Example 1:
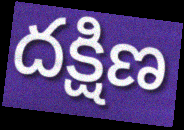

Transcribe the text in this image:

దక్షిణ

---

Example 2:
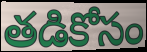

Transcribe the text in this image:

తడికోసం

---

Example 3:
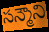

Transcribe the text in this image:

సన్మౌని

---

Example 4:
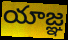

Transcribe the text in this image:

యాజ్ఞ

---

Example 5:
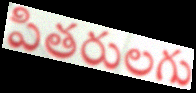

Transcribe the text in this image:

పితరులగు